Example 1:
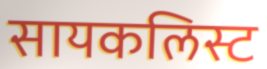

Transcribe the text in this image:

सायकलिस्ट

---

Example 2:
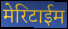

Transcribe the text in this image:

मेरिटाईम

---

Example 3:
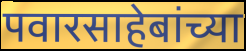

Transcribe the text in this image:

पवारसाहेबांच्या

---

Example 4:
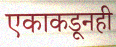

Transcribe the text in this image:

एकाकडूनही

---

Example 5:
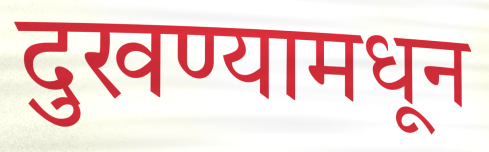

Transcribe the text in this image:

दुखण्यामधून